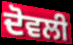
ਦੋਵਲੀ